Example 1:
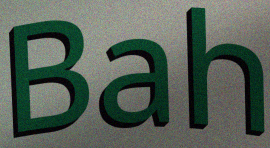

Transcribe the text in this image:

Bah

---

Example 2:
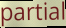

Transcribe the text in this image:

partial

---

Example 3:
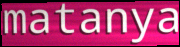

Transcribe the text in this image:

matanya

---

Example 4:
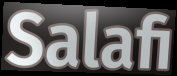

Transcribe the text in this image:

Salafi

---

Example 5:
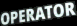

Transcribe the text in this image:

OPERATOR